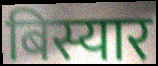
बिस्यार